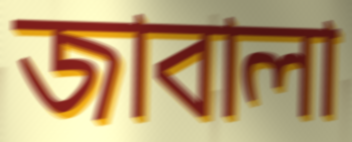
জাবালা